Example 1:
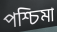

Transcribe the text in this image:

পশ্চিমা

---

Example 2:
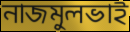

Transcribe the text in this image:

নাজমুলভাই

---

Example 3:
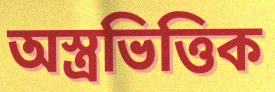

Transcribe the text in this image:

অস্ত্রভিত্তিক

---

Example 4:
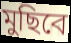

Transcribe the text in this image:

মুছিবে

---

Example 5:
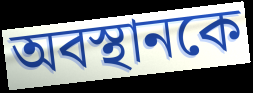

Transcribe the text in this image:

অবস্থানকে